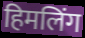
हिमलिंग